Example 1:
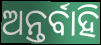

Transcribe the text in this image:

ଅନ୍ତର୍ବାହି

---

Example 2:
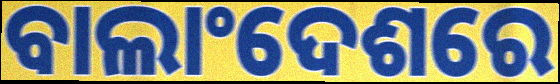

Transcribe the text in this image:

ବାଲାଂଦେଶରେ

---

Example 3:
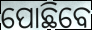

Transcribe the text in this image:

ପୋଛିବେ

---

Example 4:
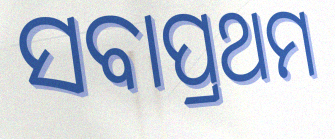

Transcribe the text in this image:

ସବାପ୍ରଥମ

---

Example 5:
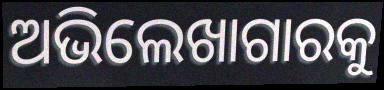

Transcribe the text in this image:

ଅଭିଲେଖାଗାରକୁ